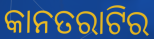
କାନତରାଟିର